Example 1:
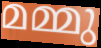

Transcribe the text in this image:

മമ്മു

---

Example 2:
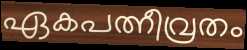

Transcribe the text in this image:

ഏകപത്നീവ്രതം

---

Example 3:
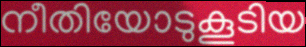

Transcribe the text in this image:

നീതിയോടുകൂടിയ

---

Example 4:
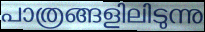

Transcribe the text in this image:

പാത്രങ്ങളിലിടുന്നു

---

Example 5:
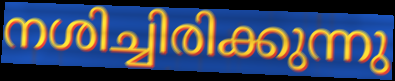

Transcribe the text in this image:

നശിച്ചിരിക്കുന്നു